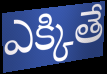
ఎక్కితే